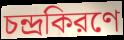
চন্দ্রকিরণে